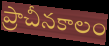
ప్రాచీనకాలం